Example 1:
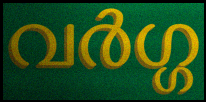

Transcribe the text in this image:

വർഗ്ഗ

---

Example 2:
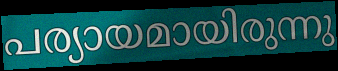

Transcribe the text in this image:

പര്യായമായിരുന്നു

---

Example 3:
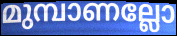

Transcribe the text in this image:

മുമ്പാണല്ലോ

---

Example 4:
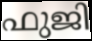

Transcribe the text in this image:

ഫുജി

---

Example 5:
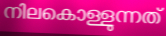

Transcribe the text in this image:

നിലകൊള്ളുന്നത്